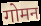
गोमन